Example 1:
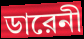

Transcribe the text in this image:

ডারেনী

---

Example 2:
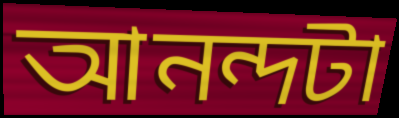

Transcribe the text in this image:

আনন্দটা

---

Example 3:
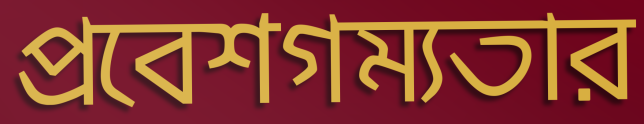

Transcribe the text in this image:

প্রবেশগম্যতার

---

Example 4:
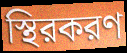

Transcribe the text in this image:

স্থিরকরণ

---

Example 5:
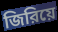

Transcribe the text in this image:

জিরিয়ে